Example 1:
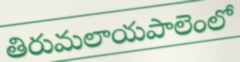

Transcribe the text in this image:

తిరుమలాయపాలెంలో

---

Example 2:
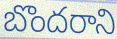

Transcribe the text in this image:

బొందరాని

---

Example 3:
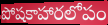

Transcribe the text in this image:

పోషకాహారలోపం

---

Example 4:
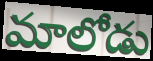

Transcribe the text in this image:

మాలోడు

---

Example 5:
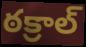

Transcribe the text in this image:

ఠక్రాల్